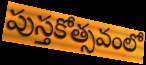
పుస్తకోత్సవంలో